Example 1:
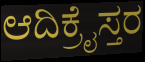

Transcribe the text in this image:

ಆದಿಕ್ರೈಸ್ತರ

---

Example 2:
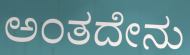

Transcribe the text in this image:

ಅಂತದೇನು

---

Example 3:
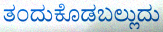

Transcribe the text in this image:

ತಂದುಕೊಡಬಲ್ಲುದು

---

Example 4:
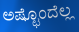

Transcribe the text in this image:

ಅಷ್ಟೊಂದೆಲ್ಲ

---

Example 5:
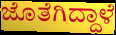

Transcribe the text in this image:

ಜೊತೆಗಿದ್ದಾಳೆ